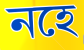
নহে